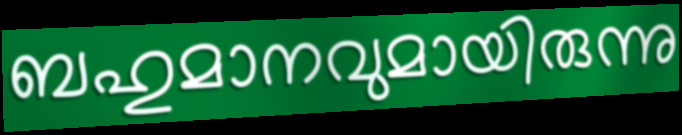
ബഹുമാനവുമായിരുന്നു